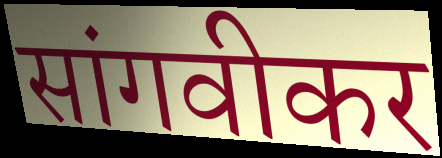
सांगवीकर